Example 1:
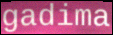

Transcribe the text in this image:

gadima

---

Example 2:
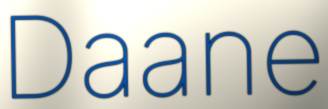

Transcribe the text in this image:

Daane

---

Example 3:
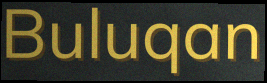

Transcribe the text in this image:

Buluqan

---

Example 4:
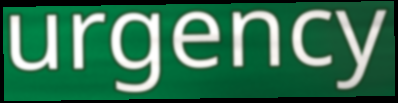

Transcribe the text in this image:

urgency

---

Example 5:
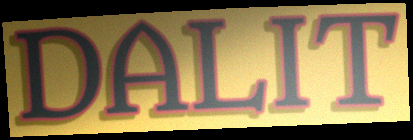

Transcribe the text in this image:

DALIT